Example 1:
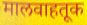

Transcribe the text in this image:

मालवाहतूक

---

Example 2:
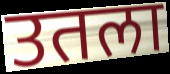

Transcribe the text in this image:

उतला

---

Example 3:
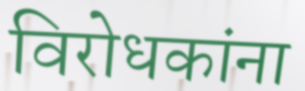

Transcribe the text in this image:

विरोधकांना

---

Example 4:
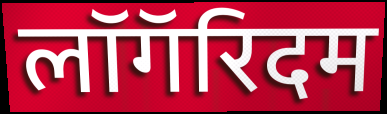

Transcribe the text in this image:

लॉगॅरिदम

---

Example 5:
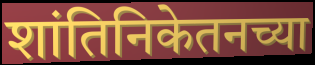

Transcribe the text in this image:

शांतिनिकेतनच्या